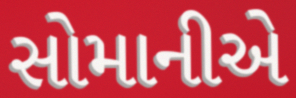
સોમાનીએ